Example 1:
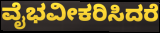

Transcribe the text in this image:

ವೈಭವೀಕರಿಸಿದರೆ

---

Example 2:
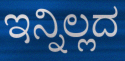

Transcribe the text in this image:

ಇನ್ನಿಲ್ಲದ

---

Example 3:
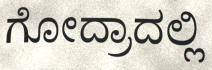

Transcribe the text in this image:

ಗೋದ್ರಾದಲ್ಲಿ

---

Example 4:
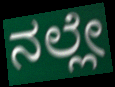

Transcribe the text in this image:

ನಲ್ಲೇ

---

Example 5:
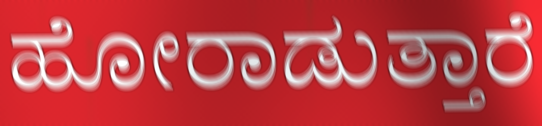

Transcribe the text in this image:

ಹೋರಾಡುತ್ತಾರೆ